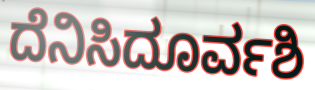
ದೆನಿಸಿದೂರ್ವಶಿ